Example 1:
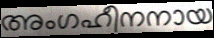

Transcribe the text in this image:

അംഗഹീനനായ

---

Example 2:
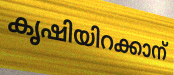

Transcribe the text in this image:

കൃഷിയിറക്കാന്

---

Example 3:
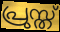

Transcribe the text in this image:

പ്രുസ്ത്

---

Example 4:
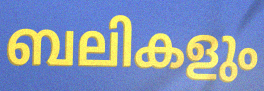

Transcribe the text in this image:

ബലികളും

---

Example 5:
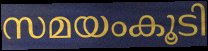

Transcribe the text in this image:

സമയംകൂടി